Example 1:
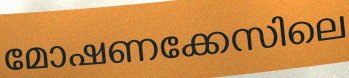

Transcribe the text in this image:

മോഷണക്കേസിലെ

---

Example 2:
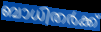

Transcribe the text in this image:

ബാധിതർക്ക്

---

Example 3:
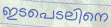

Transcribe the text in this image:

ഇടപെടലിനെ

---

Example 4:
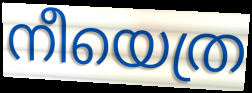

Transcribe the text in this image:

നീയെത്ര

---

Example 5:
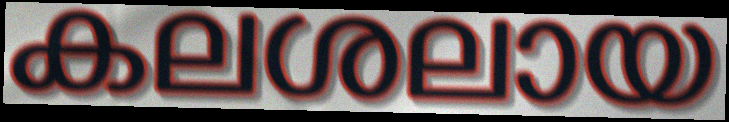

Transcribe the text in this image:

കലശലായ